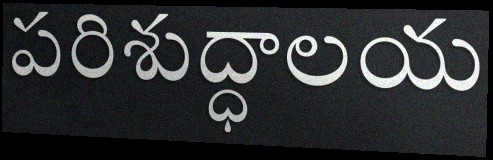
పరిశుద్ధాలయ